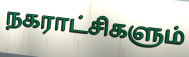
நகராட்சிகளும்